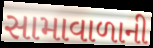
સામાવાળાની